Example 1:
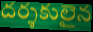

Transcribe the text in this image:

దర్శకులైన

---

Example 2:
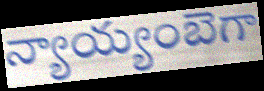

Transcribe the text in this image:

న్యాయ్యంబెగా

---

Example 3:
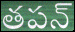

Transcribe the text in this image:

తపన్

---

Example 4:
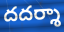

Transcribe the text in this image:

దదర్శా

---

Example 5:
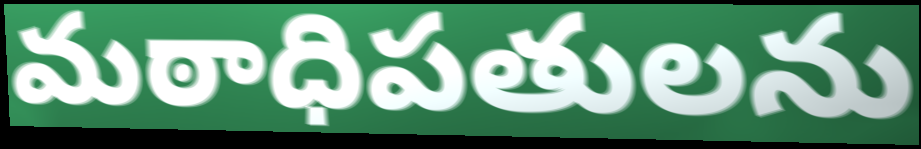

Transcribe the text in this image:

మఠాధిపతులను